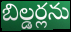
బిల్డర్లను